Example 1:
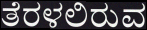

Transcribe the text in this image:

ತೆರಳಲಿರುವ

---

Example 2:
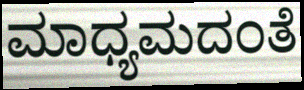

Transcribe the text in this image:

ಮಾಧ್ಯಮದಂತೆ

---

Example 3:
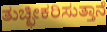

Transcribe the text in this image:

ತುಚ್ಛೀಕರಿಸುತ್ತಾನೆ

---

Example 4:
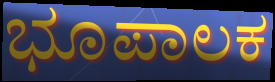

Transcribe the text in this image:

ಭೂಪಾಲಕ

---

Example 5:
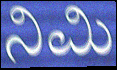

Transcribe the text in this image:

ನಿಮಿ